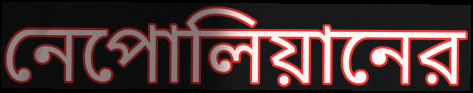
নেপোলিয়ানের